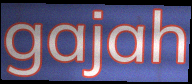
gajah